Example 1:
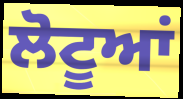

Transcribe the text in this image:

ਲੋਟੂਆਂ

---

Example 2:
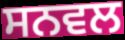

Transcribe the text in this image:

ਸਨਵਲ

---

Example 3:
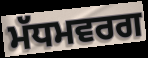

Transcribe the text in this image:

ਮੱਧਮਵਰਗ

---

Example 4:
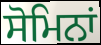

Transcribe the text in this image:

ਸੋਮਿਨਾਂ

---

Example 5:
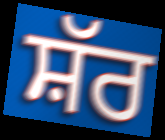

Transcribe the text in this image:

ਸ਼ੱਰ